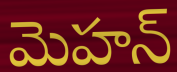
మెహన్